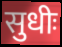
सुधीः